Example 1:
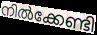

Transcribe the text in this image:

നിൽക്കേണ്ടി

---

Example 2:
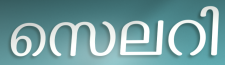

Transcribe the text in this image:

സെലറി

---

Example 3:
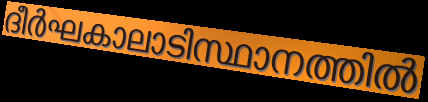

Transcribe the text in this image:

ദീർഘകാലാടിസ്ഥാനത്തിൽ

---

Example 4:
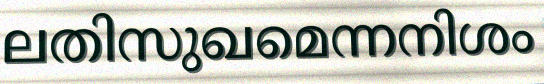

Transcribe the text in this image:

ലതിസുഖമെന്നനിശം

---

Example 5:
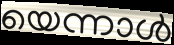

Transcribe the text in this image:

യെന്നാൾ